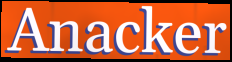
Anacker